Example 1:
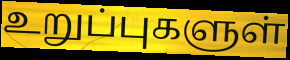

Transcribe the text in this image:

உறுப்புகளுள்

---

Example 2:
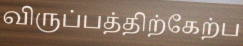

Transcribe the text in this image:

விருப்பத்திற்கேற்ப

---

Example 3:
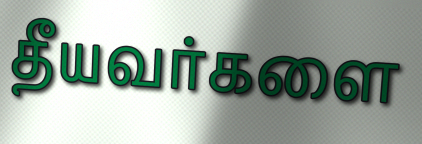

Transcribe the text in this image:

தீயவர்களை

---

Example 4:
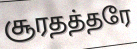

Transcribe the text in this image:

சூரதத்தரே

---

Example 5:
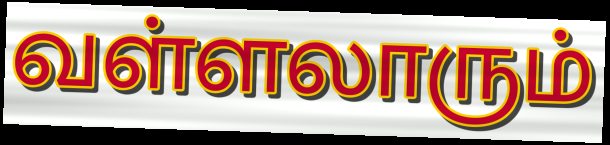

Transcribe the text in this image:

வள்ளலாரும்